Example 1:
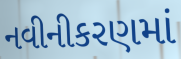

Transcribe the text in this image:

નવીનીકરણમાં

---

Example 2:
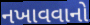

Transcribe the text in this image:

નખાવવાનો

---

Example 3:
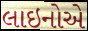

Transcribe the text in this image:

લાઇનોએ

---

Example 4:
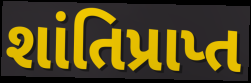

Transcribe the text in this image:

શાંતિપ્રાપ્ત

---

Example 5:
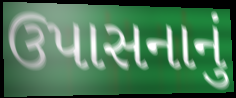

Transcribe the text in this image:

ઉપાસનાનું